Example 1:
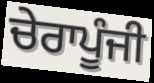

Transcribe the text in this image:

ਚੇਰਾਪੂੰਜੀ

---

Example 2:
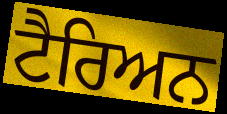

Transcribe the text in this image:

ਟੈਰਿਅਨ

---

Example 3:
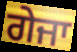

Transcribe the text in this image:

ਗੇਜਾ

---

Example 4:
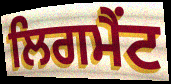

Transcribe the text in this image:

ਲਿਗਮੈਂਟ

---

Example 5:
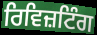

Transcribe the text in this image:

ਰਿਵਿਜ਼ਟਿੰਗ